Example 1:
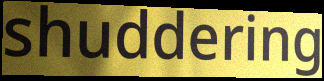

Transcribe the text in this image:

shuddering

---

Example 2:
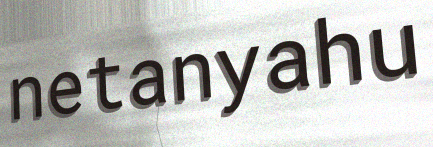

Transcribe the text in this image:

netanyahu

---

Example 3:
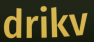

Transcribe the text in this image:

drikv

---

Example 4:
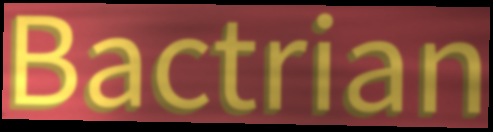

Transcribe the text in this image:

Bactrian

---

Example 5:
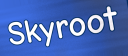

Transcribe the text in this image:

Skyroot